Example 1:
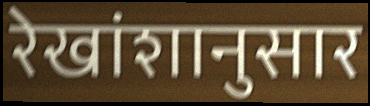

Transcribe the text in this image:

रेखांशानुसार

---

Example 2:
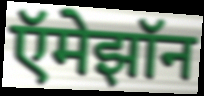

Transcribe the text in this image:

ऍमेझॉन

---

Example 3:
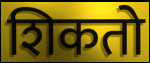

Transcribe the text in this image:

शिकतो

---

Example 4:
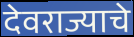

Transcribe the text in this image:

देवराज्याचे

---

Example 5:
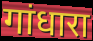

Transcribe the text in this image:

गांधारा